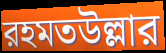
রহমতউল্লার